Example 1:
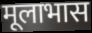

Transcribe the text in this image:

मूलाभास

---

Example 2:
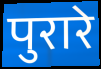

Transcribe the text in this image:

पुरारे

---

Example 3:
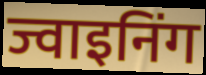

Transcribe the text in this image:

ज्वाइनिंग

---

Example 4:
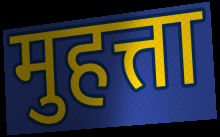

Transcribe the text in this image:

मुहत्ता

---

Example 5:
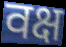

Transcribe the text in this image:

वक्ष